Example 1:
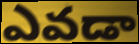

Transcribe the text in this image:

ఎవడా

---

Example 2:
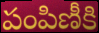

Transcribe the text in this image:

పంపిణీకి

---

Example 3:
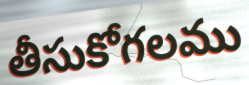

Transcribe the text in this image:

తీసుకోగలము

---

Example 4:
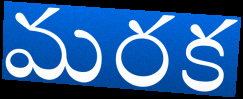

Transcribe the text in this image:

మరక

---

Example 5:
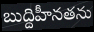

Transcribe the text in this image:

బుద్దిహీనతను